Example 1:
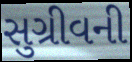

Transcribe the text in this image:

સુગ્રીવની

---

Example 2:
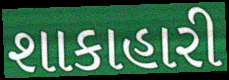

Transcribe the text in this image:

શાકાહારી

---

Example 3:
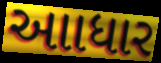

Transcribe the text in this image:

આાધાર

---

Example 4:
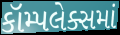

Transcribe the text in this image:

કૉમ્પલેક્સમાં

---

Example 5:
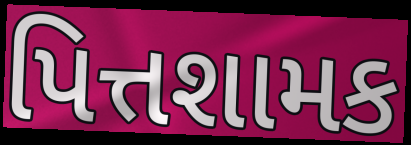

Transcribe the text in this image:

પિત્તશામક